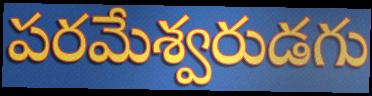
పరమేశ్వరుడగు